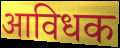
आविधक